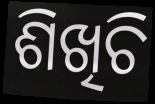
ଶିଖିଚି